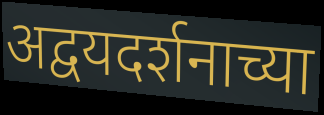
अद्वयदर्शनाच्या